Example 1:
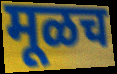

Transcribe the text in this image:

मूळच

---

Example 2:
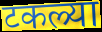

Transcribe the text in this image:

टकल्या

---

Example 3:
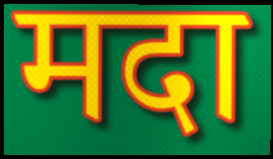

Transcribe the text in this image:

मदा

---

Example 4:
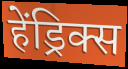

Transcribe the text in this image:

हेंड्रिक्स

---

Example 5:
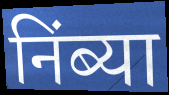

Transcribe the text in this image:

निंब्या